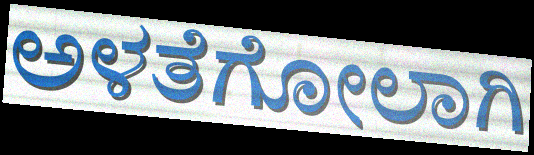
ಅಳತೆಗೋಲಾಗಿ